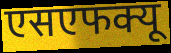
एसएफक्यू